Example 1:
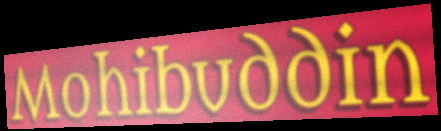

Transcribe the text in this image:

Mohibuddin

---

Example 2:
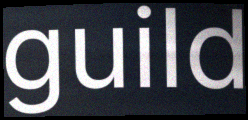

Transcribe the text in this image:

guild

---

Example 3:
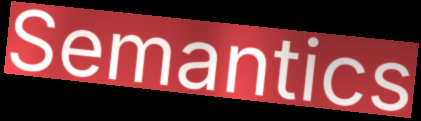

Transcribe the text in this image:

Semantics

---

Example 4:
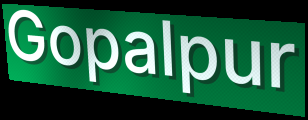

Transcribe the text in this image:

Gopalpur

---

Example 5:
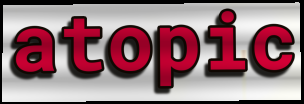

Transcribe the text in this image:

atopic